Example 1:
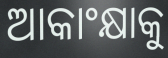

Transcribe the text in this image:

ଆକାଂକ୍ଷାକୁ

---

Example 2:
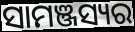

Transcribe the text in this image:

ସାମଞ୍ଜସ୍ୟର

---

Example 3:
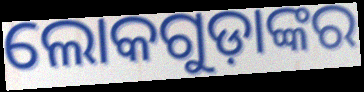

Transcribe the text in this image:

ଲୋକଗୁଡ଼ାଙ୍କର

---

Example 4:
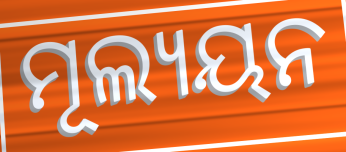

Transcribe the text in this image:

ମୂଲ୍ୟୟନ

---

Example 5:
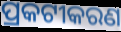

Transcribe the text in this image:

ପ୍ରକଟୀକରଣ